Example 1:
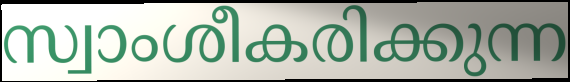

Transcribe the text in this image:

സ്വാംശീകരിക്കുന്ന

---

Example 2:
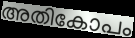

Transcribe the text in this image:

അതികോപം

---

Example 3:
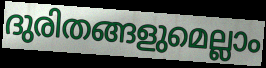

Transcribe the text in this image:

ദുരിതങ്ങളുമെല്ലാം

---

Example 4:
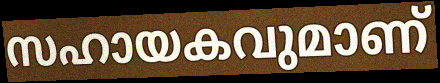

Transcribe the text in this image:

സഹായകവുമാണ്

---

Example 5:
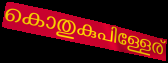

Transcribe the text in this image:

കൊതുകുപിള്ളേര്